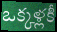
ఒక్కళ్లకీ